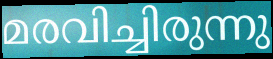
മരവിച്ചിരുന്നു